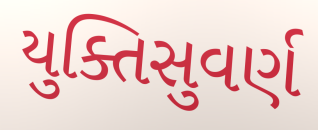
યુક્તિસુવર્ણ